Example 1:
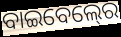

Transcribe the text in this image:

ବାଇବେଲ୍‍ରେ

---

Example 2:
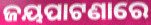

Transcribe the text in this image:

ଜୟପାଟଣାରେ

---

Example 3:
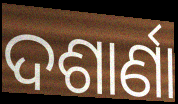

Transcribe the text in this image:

ଦଶାର୍ଣା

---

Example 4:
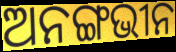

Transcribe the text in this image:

ଅନଙ୍ଗଭୀନ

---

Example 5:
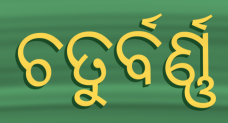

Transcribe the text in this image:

ଚତୁର୍ବର୍ଣ୍ଣ